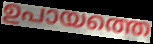
ഉപായത്തെ